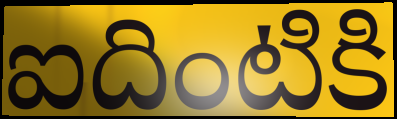
ఐదింటికి